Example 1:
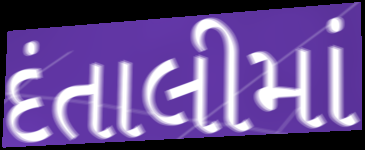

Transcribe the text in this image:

દંતાલીમાં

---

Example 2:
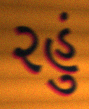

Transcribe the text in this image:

રહું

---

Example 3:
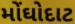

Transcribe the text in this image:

મોંઘોદાટ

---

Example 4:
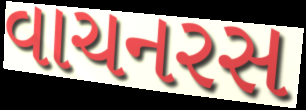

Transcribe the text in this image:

વાચનરસ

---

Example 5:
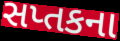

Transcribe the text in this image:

સપ્તકના